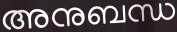
അനുബന്ധ